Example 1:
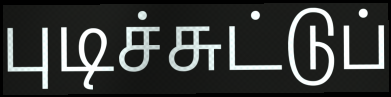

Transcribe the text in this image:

புடிச்சுட்டுப்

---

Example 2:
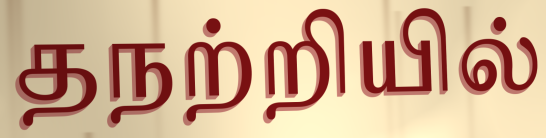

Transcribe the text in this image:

தநற்றியில்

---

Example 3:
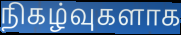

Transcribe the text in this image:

நிகழ்வுகளாக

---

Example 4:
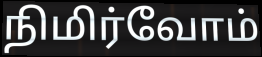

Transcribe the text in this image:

நிமிர்வோம்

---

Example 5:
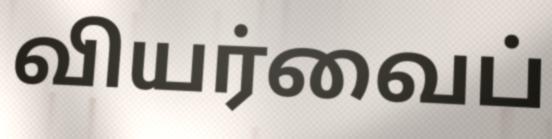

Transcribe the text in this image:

வியர்வைப்